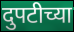
दुपटीच्या